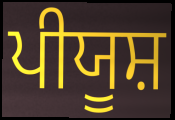
ਪੀਯੂਸ਼